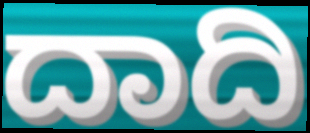
ದಾದಿ